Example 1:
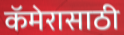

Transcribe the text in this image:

कॅमेरासाठी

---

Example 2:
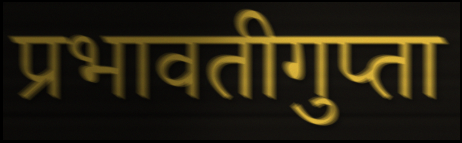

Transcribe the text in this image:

प्रभावतीगुप्ता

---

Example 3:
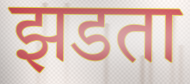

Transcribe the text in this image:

झडता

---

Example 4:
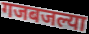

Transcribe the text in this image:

गजबजल्या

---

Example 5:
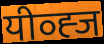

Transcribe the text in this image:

यीव्ह्ज